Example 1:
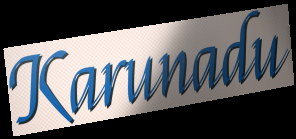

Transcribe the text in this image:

Karunadu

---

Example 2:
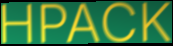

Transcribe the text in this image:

HPACK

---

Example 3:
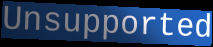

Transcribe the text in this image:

Unsupported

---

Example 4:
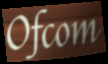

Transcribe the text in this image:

Ofcom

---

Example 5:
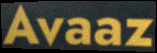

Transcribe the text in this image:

Avaaz